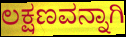
ಲಕ್ಷಣವನ್ನಾಗಿ